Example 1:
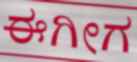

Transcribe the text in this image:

ಈಗೀಗ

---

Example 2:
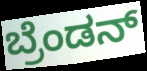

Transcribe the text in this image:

ಬ್ರೆಂಡನ್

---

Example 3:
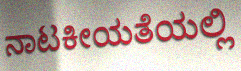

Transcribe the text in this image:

ನಾಟಕೀಯತೆಯಲ್ಲಿ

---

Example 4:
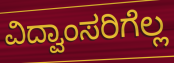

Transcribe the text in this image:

ವಿದ್ವಾಂಸರಿಗೆಲ್ಲ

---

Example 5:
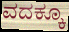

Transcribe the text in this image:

ವದಕ್ಕೂ